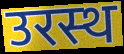
उरस्थ